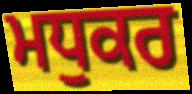
ਮਧੁਕਰ